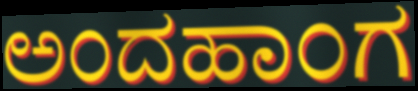
ಅಂದಹಾಂಗ